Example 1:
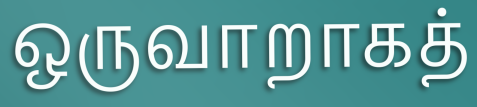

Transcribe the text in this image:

ஒருவாறாகத்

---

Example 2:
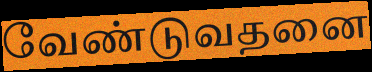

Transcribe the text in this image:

வேண்டுவதனை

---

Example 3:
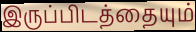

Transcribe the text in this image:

இருப்பிடத்தையும்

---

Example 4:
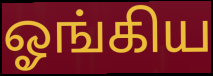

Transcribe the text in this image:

ஓங்கிய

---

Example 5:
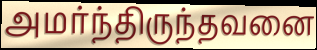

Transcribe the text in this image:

அமர்ந்திருந்தவனை